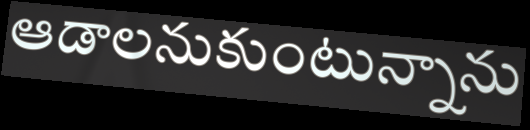
ఆడాలనుకుంటున్నాను